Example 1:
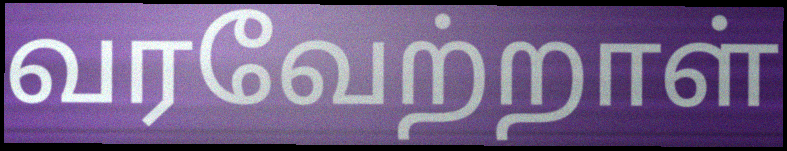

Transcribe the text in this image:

வரவேற்றாள்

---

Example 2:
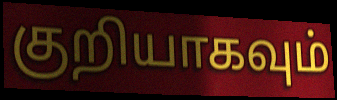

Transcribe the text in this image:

குறியாகவும்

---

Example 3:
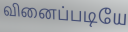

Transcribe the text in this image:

வினைப்படியே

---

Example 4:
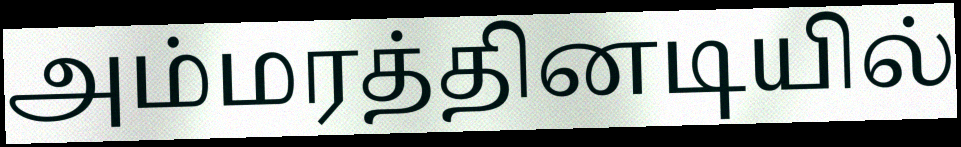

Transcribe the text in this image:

அம்மரத்தினடியில்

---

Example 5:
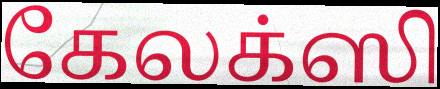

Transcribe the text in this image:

கேலக்ஸி